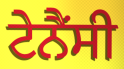
ਟੇਨੈਂਸੀ